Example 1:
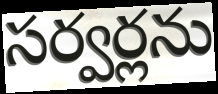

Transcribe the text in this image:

సర్వర్లను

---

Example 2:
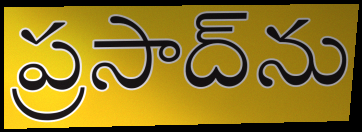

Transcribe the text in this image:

ప్రసాద్‌ను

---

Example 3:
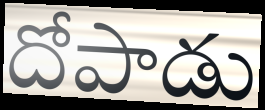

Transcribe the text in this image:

దోపాడు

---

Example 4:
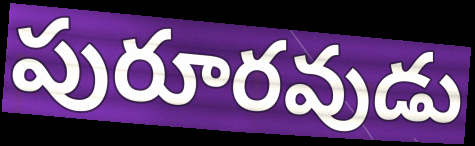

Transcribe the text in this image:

పురూరవుడు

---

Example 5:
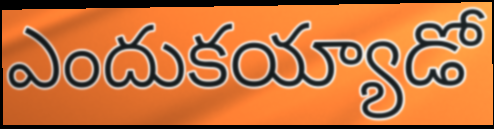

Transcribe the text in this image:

ఎందుకయ్యాడో